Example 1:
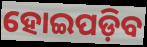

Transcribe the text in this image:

ହୋଇପଡ଼ିବ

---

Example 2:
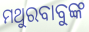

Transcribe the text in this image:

ମଥୁରବାବୁଙ୍କ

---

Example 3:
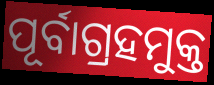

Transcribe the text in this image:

ପୂର୍ବାଗ୍ରହମୁକ୍ତ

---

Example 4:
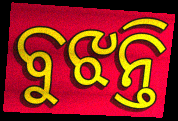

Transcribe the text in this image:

ବୁଝନ୍ତି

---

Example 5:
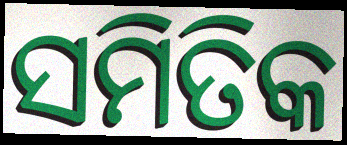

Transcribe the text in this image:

ସମିତିକ